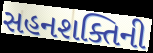
સહનશક્તિની